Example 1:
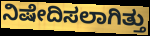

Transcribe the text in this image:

ನಿಷೇದಿಸಲಾಗಿತ್ತು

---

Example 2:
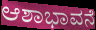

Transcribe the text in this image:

ಆಶಾಭಾವನೆ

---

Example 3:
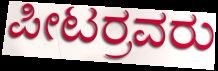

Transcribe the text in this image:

ಪೀಟರ್‍ರವರು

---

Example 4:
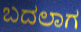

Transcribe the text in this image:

ಬದಲಾಗ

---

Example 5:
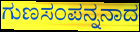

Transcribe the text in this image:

ಗುಣಸಂಪನ್ನನಾದ